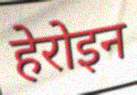
हेरोइन